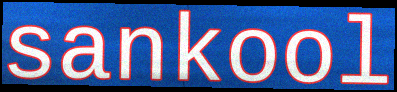
sankool